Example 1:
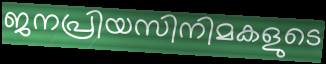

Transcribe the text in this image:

ജനപ്രിയസിനിമകളുടെ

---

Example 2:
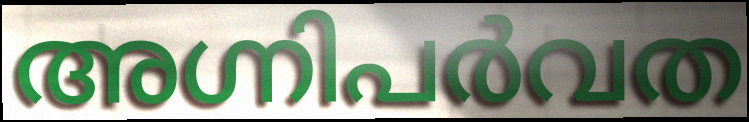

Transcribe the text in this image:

അഗ്നിപർവത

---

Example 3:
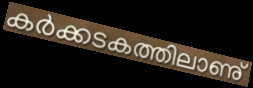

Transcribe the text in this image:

കർക്കടകത്തിലാണു്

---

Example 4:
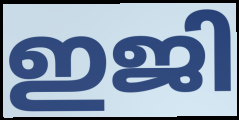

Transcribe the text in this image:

ഇജി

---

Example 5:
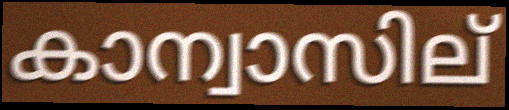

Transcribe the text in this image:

കാന്വാസില്